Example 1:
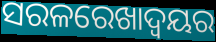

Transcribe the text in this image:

ସରଳରେଖାଦ୍ବୟର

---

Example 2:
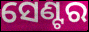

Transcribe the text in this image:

ସେଣ୍ଟର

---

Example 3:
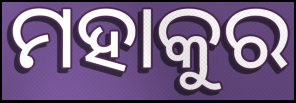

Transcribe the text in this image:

ମହାକୁର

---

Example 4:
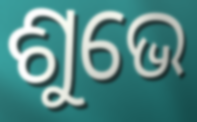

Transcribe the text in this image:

ଶୁଭେ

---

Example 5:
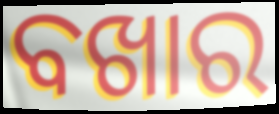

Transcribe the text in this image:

ବଖାର